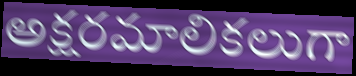
అక్షరమాలికలుగా